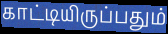
காட்டியிருப்பதும்